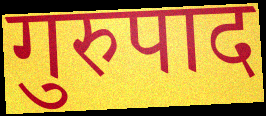
गुरुपाद